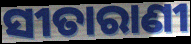
ସୀତାରାଣୀ